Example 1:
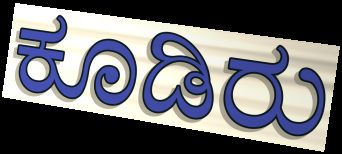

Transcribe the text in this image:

ಕೂಡಿರು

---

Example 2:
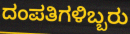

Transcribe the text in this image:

ದಂಪತಿಗಳಿಬ್ಬರು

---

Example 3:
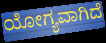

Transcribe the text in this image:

ಯೋಗ್ಯವಾಗಿದೆ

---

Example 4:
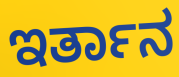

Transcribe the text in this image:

ಇರ್ತಾನ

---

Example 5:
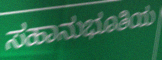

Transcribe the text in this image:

ಸಹಾನುಭೂತಿಯ